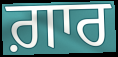
ਗ਼ਾਰ